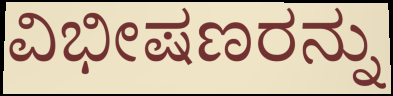
ವಿಭೀಷಣರನ್ನು